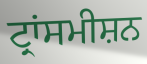
ਟ੍ਰਾਂਸਮੀਸ਼ਨ